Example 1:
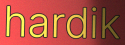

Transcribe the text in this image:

hardik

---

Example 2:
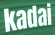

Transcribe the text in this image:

kadai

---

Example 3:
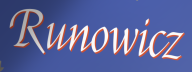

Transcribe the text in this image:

Runowicz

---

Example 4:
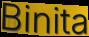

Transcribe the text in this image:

Binita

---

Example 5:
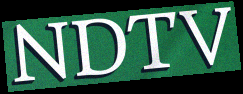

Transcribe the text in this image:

NDTV